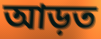
আড়ত